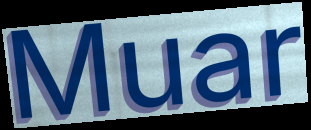
Muar